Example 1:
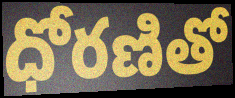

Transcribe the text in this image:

ధోరణితో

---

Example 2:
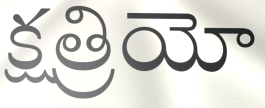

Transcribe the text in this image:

క్షత్రియో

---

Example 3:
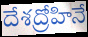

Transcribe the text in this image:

దేశద్రోహినే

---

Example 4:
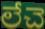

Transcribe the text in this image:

లేచె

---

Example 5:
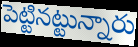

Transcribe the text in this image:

పెట్టినట్టున్నారు